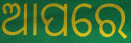
ଆପରେ